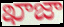
ఖాజా